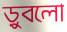
ড়ুবলো